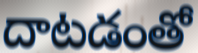
దాటడంతో